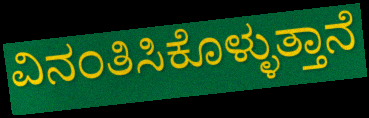
ವಿನಂತಿಸಿಕೊಳ್ಳುತ್ತಾನೆ